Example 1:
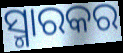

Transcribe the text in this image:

ସ୍ମାରକର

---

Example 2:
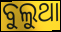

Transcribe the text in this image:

ବୁଲୁଥା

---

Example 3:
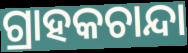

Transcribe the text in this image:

ଗ୍ରାହକଚାନ୍ଦା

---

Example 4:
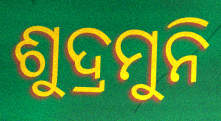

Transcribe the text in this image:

ଶୁଦ୍ରମୁନି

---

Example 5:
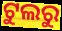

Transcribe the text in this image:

ଟୁଲରୁ